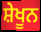
ਸ਼ੇਖੂਨ